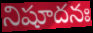
నిషూదనః